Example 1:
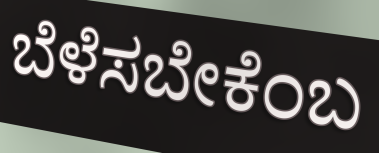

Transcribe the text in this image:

ಬೆಳೆಸಬೇಕೆಂಬ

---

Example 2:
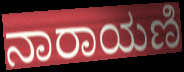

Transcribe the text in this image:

ನಾರಾಯಣಿ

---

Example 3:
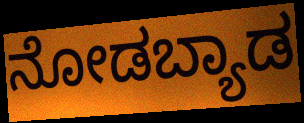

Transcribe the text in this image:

ನೋಡಬ್ಯಾಡ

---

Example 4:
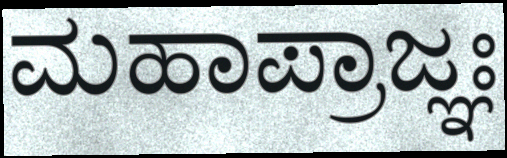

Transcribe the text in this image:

ಮಹಾಪ್ರಾಜ್ಞಃ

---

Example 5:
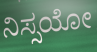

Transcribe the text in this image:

ನಿಸ್ಸಯೋ